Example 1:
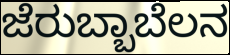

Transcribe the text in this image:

ಜೆರುಬ್ಬಾಬೆಲನ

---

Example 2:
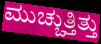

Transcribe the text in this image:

ಮುಚ್ಚುತ್ತಿತ್ತು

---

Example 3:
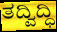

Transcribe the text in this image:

ತದ್ವಿದ್ಧಿ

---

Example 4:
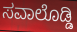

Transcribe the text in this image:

ಸವಾಲೊಡ್ಡಿ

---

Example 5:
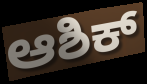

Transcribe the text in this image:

ಆಶಿಕ್